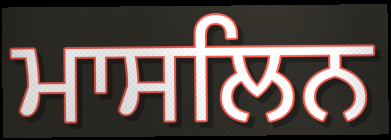
ਮਾਸਲਿਨ